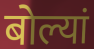
बोल्यां